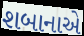
શબાનાએ